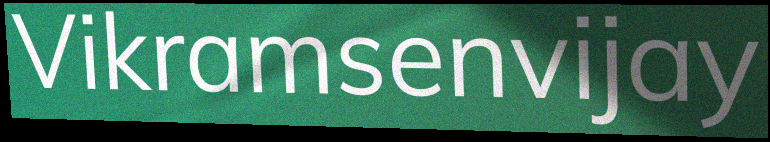
Vikramsenvijay